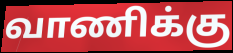
வாணிக்கு